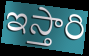
ఇస్తారి